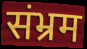
संभ्रम